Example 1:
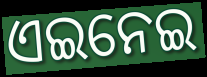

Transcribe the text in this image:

ଏଇନେଇ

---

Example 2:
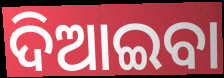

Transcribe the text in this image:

ଦିଆଇବା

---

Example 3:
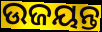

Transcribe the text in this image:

ଉଜୟନ୍ତ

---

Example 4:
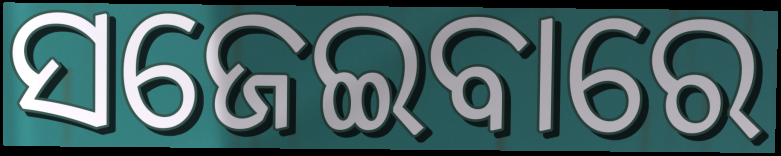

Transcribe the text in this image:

ସଜେଇବାରେ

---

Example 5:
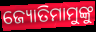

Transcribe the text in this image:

ଜ୍ୟୋତିମାମୁଙ୍କୁ